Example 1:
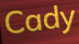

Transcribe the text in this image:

Cady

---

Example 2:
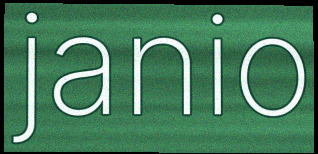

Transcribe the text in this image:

janio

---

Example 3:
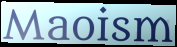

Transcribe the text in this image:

Maoism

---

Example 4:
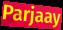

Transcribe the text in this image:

Parjaay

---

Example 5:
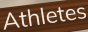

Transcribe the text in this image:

Athletes